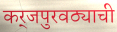
कर्जपुरवठ्याची